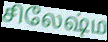
சிலேஷ்ம